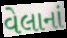
વેલાનાં